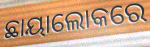
ଛାୟାଲୋକରେ